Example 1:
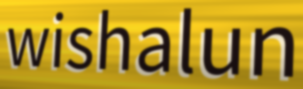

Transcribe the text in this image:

wishalun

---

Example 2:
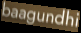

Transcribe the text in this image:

baagundhi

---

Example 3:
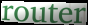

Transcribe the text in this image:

router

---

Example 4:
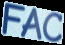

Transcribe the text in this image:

FAC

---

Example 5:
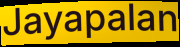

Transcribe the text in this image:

Jayapalan